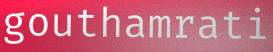
gouthamrati